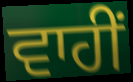
ਵਾਹੀਂ